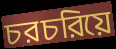
চরচরিয়ে